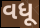
વધૂ